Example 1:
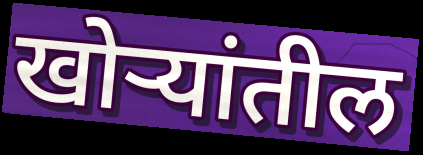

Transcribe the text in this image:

खोऱ्यांतील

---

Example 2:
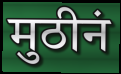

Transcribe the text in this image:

मुठीनं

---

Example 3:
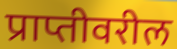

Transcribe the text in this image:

प्राप्तीवरील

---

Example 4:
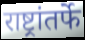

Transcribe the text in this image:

राष्ट्रांतर्फे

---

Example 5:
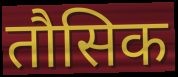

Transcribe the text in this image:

तौसिक